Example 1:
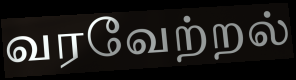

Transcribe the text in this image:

வரவேற்றல்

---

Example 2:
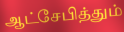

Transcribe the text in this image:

ஆட்சேபித்தும்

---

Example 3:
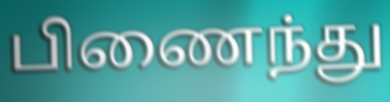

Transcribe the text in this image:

பிணைந்து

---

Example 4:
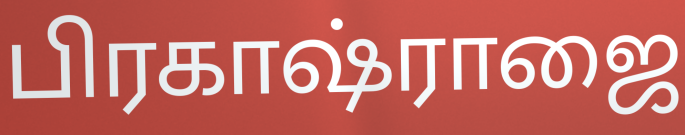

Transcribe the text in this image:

பிரகாஷ்ராஜை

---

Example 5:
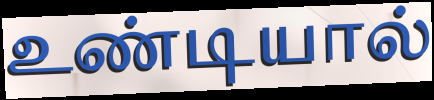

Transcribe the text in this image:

உண்டியால்